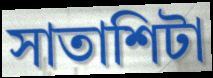
সাতাশিটা